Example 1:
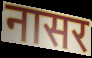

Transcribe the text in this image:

नासर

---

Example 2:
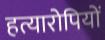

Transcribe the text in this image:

हत्यारोपियों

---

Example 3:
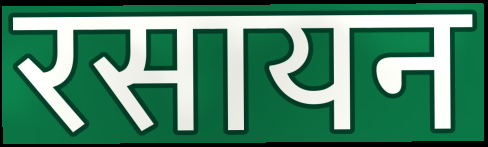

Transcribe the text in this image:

रसायन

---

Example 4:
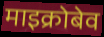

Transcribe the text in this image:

माइक्रोबेव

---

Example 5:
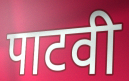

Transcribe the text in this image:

पाटवी